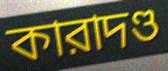
কারাদণ্ড